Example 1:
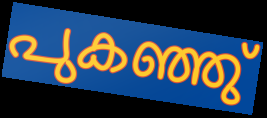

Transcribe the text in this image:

പുകഞ്ഞു്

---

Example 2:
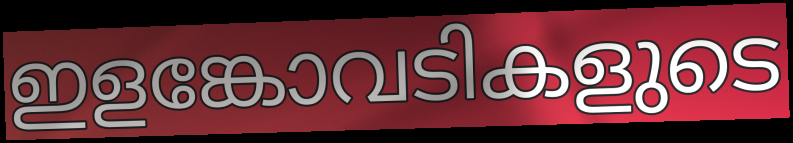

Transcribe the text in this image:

ഇളങ്കോവടികളുടെ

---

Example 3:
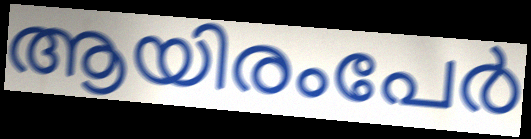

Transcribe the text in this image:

ആയിരംപേർ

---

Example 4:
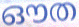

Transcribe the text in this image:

ഔത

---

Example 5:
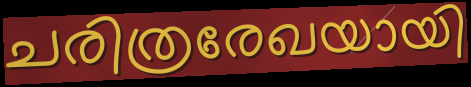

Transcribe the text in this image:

ചരിത്രരേഖയായി